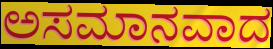
ಅಸಮಾನವಾದ